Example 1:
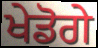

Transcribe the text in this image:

ਖੇਡੋਗੇ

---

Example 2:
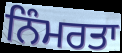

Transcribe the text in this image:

ਨਿੰਮਰਤਾ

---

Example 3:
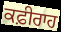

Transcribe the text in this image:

ਕਫ਼ੀਰਾਹ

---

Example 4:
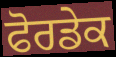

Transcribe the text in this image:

ਫੋਰਡੇਕ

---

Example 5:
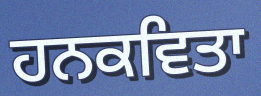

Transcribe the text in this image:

ਹਨਕਵਿਤਾ